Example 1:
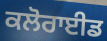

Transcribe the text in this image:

ਕਲੋਰਾਈਡ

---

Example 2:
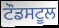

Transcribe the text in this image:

ਟੌਡਸਟੂਲ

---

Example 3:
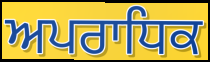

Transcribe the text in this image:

ਅਪਰਾਧਿਕ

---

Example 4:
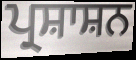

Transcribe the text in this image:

ਪ੍ਰਸ਼ਾਸ਼ਨ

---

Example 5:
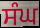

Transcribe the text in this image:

ਸੰਘ